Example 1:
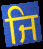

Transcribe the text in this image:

ਜਿ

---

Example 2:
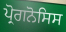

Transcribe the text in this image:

ਪ੍ਰੋਗਨੋਸਿਸ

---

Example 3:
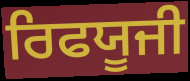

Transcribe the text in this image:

ਰਿਫਯੂਜੀ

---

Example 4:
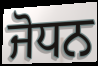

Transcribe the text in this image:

ਜੋਧਨ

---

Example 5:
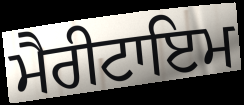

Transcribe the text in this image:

ਮੈਰੀਟਾਇਮ